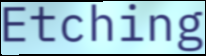
Etching